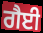
ਗੈਈ